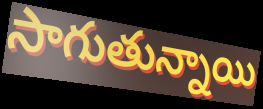
సాగుతున్నాయి